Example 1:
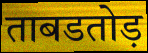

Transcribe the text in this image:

ताबडतोड़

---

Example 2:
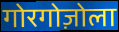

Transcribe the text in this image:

गोरगोज़ोला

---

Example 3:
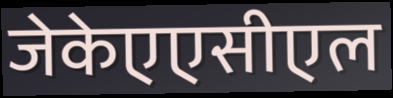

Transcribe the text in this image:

जेकेएएसीएल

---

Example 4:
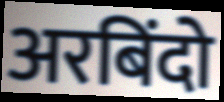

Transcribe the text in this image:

अरबिंदो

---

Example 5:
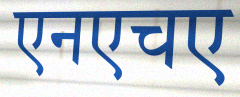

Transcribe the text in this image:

एनएचए